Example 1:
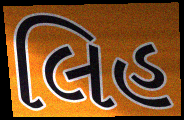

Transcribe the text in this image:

લિહ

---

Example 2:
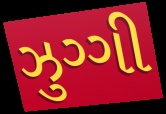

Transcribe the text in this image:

ઝુગ્ગી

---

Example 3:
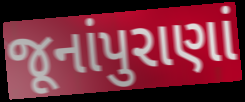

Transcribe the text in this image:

જૂનાંપુરાણાં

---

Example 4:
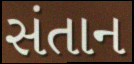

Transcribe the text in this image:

સંતાન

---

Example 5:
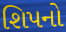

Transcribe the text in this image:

શિપનો